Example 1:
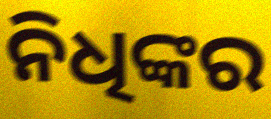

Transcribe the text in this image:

ନିଧିଙ୍କର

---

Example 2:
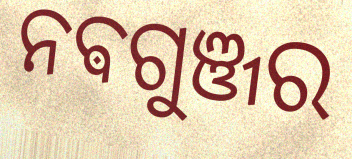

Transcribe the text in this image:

ନଵଗୁଞ୍ଜର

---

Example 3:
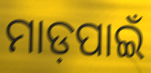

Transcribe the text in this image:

ମାଡ଼ପାଇଁ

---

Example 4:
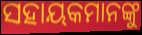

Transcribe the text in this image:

ସହାୟକମାନଙ୍କୁ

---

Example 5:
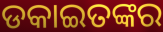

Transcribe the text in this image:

ଡକାଇତଙ୍କର